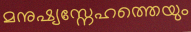
മനുഷ്യസ്നേഹത്തെയും